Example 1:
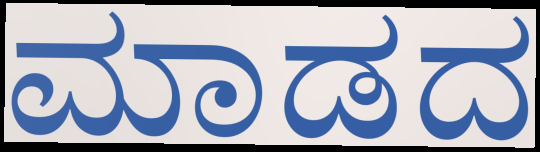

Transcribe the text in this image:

ಮಾಡದ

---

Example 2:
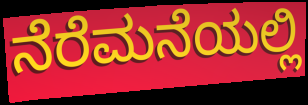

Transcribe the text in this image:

ನೆರೆಮನೆಯಲ್ಲಿ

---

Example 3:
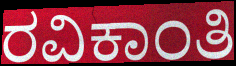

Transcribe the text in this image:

ರವಿಕಾಂತಿ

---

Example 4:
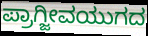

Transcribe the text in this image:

ಪ್ರಾಗ್ಜೀವಯುಗದ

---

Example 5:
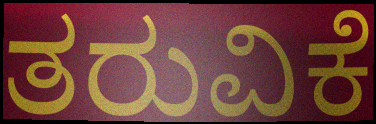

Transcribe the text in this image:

ತರುವಿಕೆ